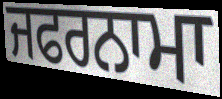
ਜਫਰਨਾਮਾ